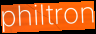
philtron